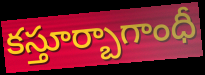
కస్తూర్బాగాంధీ